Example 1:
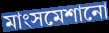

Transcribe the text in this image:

মাংসমেশানো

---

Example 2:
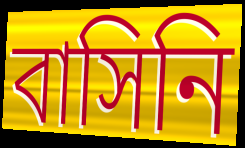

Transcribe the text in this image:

বাসিনি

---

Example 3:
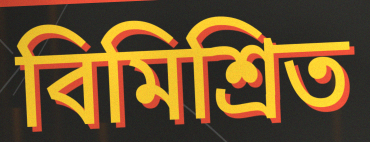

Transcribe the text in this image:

বিমিশ্রিত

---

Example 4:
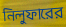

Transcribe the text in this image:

নিলুফারের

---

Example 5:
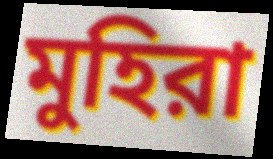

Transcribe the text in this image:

মুহিরা